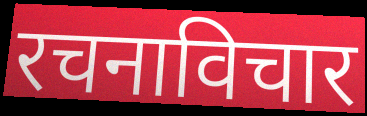
रचनाविचार